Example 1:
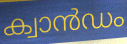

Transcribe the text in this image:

ക്വാൻഡം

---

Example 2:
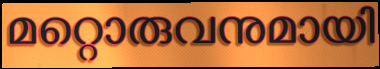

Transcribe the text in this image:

മറ്റൊരുവനുമായി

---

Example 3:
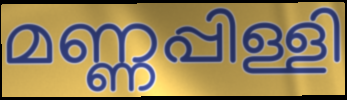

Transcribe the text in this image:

മണ്ണപ്പിള്ളി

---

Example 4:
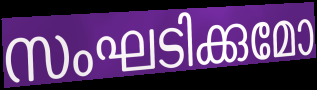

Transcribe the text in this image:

സംഘടിക്കുമോ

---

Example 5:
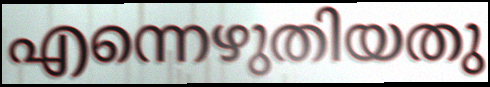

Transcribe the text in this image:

എന്നെഴുതിയതു